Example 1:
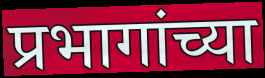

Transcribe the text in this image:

प्रभागांच्या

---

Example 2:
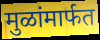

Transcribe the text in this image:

मुळांमार्फत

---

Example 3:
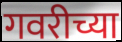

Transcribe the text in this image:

गवरीच्या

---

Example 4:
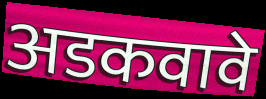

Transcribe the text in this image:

अडकवावे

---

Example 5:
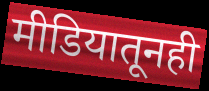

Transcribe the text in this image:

मीडियातूनही